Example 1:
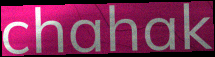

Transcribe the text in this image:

chahak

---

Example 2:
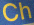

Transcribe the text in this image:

Ch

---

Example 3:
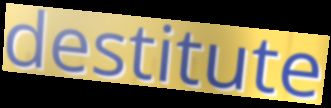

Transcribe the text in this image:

destitute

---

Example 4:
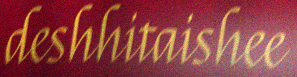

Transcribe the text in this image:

deshhitaishee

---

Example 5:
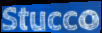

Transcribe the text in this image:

Stucco